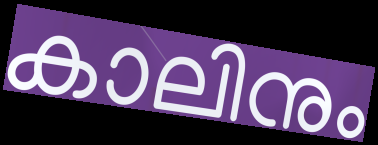
കാലിനും